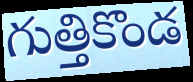
గుత్తికొండ